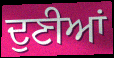
ਦੁਣੀਆਂ